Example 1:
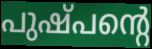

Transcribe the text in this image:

പുഷ്പന്റെ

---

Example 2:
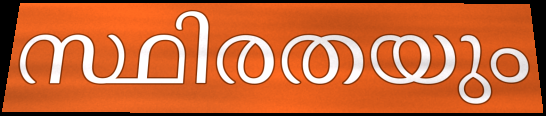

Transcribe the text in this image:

സ്ഥിരതയും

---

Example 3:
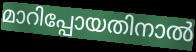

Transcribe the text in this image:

മാറിപ്പോയതിനാൽ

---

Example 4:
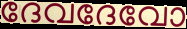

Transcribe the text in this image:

ദേവദേവോ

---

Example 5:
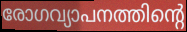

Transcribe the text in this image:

രോഗവ്യാപനത്തിന്റെ